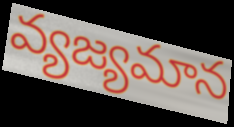
వ్యజ్యమాన